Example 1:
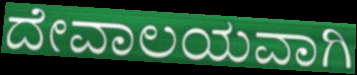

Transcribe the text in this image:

ದೇವಾಲಯವಾಗಿ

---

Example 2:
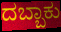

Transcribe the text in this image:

ದಬ್ಬಾಕು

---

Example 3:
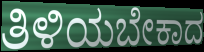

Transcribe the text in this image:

ತಿಳಿಯಬೇಕಾದ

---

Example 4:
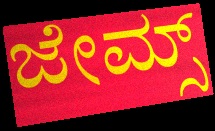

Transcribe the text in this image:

ಜೇಮ್ಸ್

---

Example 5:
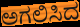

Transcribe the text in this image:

ಅಗಲಿಸಿದ